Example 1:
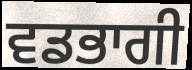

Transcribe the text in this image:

ਵਡਭਾਗੀ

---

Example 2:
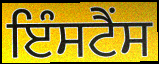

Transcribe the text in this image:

ਇੰਸਟੈਂਸ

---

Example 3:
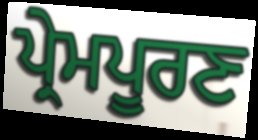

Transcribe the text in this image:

ਪ੍ਰੇਮਪੂਰਣ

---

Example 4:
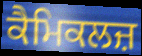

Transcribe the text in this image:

ਕੈਮਿਕਲਜ਼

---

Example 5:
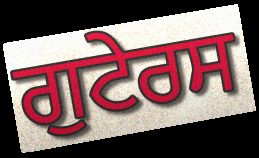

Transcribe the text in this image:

ਗੁਟੇਰਸ